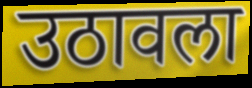
उठावला